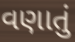
વણાતું